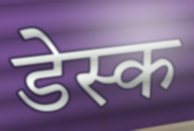
डेस्क